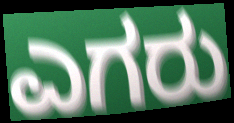
ಎಗರು